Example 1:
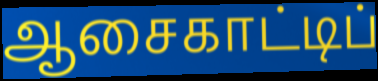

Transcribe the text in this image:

ஆசைகாட்டிப்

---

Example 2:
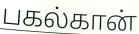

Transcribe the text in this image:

பகல்கான்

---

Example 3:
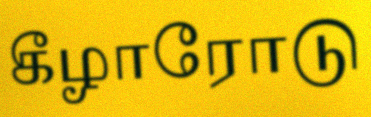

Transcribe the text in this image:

கீழாரோடு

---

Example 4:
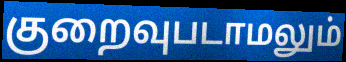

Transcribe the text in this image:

குறைவுபடாமலும்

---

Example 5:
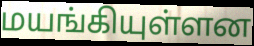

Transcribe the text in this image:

மயங்கியுள்ளன